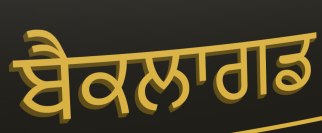
ਬੈਕਲਾਗਡ